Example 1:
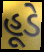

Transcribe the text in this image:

હૂડે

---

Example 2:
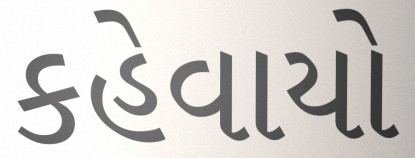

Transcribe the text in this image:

કહેવાયો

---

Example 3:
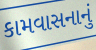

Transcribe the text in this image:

કામવાસનાનું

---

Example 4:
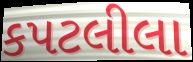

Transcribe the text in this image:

કપટલીલા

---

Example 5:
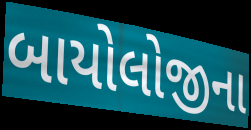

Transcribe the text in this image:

બાયોલોજીના